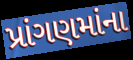
પ્રાંગણમાંના